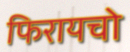
फिरायचो